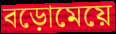
বড়োমেয়ে